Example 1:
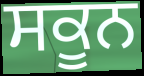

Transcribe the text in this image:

ਸਕੂਨ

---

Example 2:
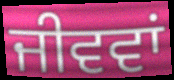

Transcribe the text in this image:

ਜੀਵਵਾਂ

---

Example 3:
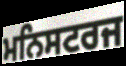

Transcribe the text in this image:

ਮਨਿਸਟਰਜ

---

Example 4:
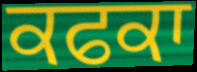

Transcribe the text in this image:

ਕਫਕਾ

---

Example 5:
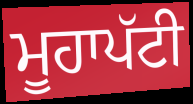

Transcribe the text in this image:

ਮੂਹਾਪੱਟੀ